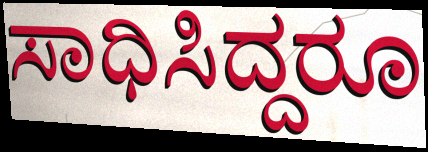
ಸಾಧಿಸಿದ್ದರೂ